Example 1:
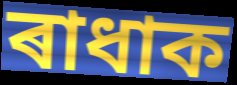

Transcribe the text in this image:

ৰাধাক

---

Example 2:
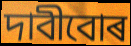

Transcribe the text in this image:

দাবীবোৰ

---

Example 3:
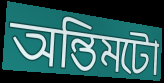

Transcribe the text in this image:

অন্তিমটো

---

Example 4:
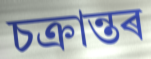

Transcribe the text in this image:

চক্ৰান্তৰ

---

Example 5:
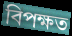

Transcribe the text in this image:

বিপক্ষত